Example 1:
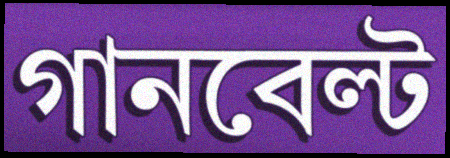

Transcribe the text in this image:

গানবেল্ট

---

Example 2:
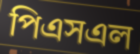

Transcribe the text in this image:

পিএসএল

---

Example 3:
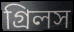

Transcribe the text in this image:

গ্রিলস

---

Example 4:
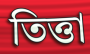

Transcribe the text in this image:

তিত্তা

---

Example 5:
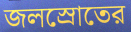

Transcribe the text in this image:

জলস্রোতের